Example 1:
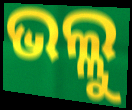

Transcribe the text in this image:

ଭଲ୍ଲୁ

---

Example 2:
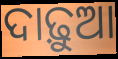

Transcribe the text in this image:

ଦାଢ଼ୁଆ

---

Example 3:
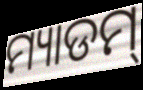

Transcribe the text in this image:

ମ୍ୟାଡମ୍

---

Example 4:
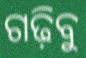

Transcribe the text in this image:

ଗଢ଼ିବୁ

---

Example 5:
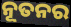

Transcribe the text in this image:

ନୂତନର